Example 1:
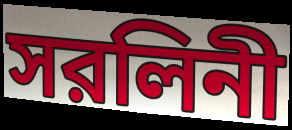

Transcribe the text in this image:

সরলিনী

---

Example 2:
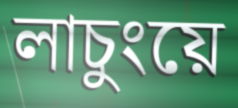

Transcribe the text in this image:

লাচুংয়ে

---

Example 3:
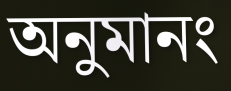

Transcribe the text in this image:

অনুমানং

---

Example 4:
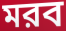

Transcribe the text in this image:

মরব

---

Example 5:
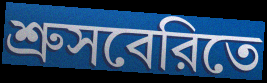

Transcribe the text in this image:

শ্রুসবেরিতে